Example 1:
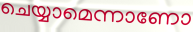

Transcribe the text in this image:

ചെയ്യാമെന്നാണോ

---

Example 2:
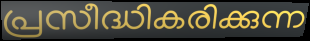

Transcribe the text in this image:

പ്രസീദ്ധികരിക്കുന്ന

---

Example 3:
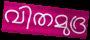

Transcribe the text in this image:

വിതമുദ്ര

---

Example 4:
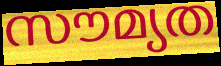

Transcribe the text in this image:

സൗമ്യത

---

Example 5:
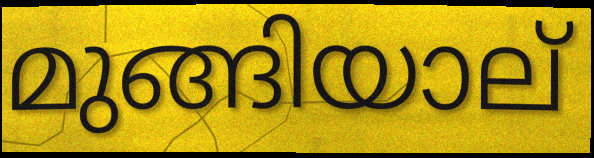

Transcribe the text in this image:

മുങ്ങിയാല്